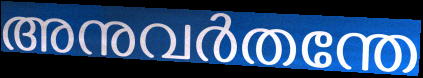
അനുവർതന്തേ